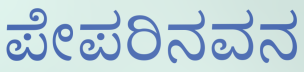
ಪೇಪರಿನವನ